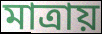
মাত্ৰায়